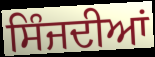
ਸਿੰਜਦੀਆਂ